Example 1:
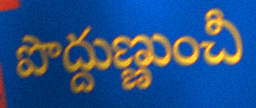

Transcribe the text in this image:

పొద్దుణ్ణుంచీ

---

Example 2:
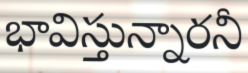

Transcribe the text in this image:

భావిస్తున్నారనీ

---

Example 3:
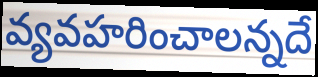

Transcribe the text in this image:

వ్యవహరించాలన్నదే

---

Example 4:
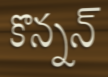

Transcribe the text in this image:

కొన్నన్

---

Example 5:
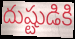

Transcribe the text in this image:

దుష్టుడికి